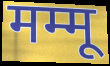
मम्मू